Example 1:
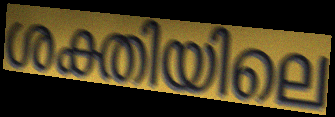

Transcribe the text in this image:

ശക്തിയിലെ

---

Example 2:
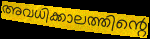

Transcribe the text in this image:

അവധിക്കാലത്തിന്റെ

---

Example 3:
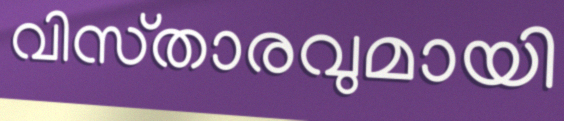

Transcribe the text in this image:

വിസ്‌താരവുമായി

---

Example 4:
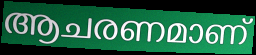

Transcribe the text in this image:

ആചരണമാണ്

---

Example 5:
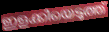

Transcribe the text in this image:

ഇളക്കിയെടുത്ത്